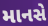
માનસે